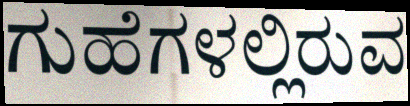
ಗುಹೆಗಳಲ್ಲಿರುವ